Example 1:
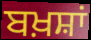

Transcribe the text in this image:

ਬਖ਼ਸ਼ਾਂ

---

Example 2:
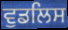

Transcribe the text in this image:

ਵੁਡਲਿਸ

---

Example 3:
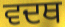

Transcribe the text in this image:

ਵਦਥ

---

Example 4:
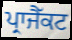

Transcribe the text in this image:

ਪ੍ਰਾਜੈੱਕਟ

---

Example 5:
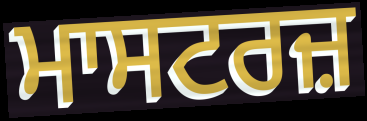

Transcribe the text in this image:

ਮਾਸਟਰਜ਼